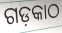
ଗଡ଼କାଠ